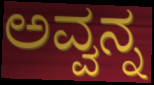
ಅವ್ವನ್ನ